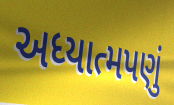
અધ્યાત્મપણું